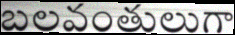
బలవంతులుగా